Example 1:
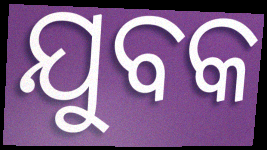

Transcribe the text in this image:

ଯୁବକ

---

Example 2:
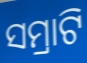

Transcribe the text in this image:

ସମ୍ରାଟି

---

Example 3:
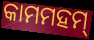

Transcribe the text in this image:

କାମମହମ୍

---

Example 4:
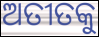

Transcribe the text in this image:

ଅତୀତକୁ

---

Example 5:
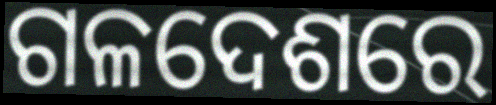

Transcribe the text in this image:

ଗଳଦେଶରେ